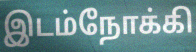
இடம்நோக்கி